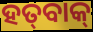
ହତ୍‌ବାକ୍